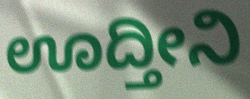
ಊದ್ತೀನಿ